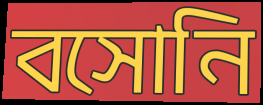
বসোনি